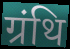
ग्रंथि